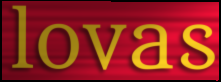
lovas